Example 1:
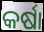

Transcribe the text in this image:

କର୍ଷା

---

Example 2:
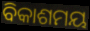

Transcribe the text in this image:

ବିକାଶମୟ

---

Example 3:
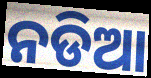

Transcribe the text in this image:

ନଡିଆ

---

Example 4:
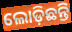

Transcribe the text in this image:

ଲୋଡ଼ିଛନ୍ତି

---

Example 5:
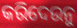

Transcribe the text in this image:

କରିଦେଉନୁ